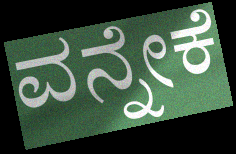
ವನ್ನೇಕೆ